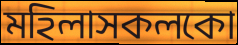
মহিলাসকলকো